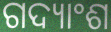
ଗଦ୍ୟାଂଶ